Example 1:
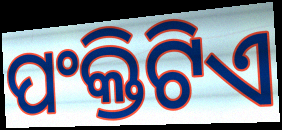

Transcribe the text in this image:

ପଂକ୍ତିଟିଏ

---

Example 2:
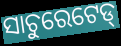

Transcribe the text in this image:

ସାଚୁରେଟେଡ୍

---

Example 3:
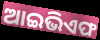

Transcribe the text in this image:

ଆଇଭିଏଫ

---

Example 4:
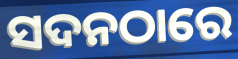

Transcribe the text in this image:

ସଦନଠାରେ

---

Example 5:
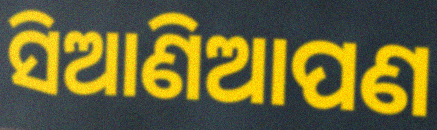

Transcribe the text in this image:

ସିଆଣିଆପଣ